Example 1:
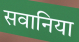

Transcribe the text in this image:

सवानिया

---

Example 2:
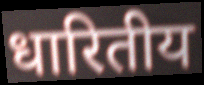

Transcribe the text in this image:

धारितीय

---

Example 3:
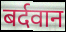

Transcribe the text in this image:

बर्दवान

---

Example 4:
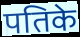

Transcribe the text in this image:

पतिके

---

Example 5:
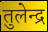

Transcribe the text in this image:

तुलेन्द्र